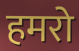
हमरो